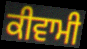
ਕੀਵਾਮੀ